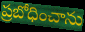
ప్రబోధించాను